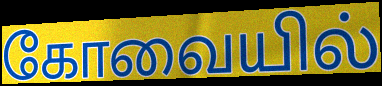
கோவையில்